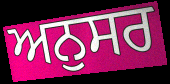
ਅਨੁਸਰ